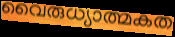
വൈരുധ്യാത്മകത